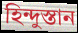
হিন্দুস্তান